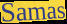
Samas